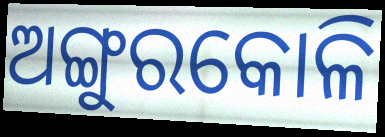
ଅଙ୍ଗୁରକୋଳି